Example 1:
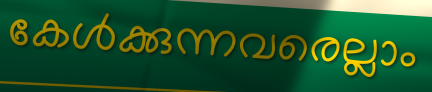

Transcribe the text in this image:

കേൾക്കുന്നവരെല്ലാം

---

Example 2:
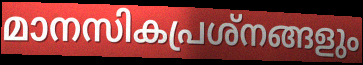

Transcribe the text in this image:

മാനസികപ്രശ്നങ്ങളും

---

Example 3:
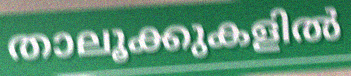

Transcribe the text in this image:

താലൂക്കുകളിൽ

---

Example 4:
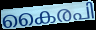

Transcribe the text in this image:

കൈരപി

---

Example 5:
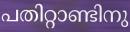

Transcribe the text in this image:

പതിറ്റാണ്ടിനു